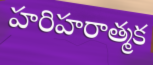
హరిహరాత్మక